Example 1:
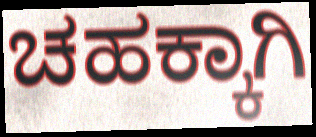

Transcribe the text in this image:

ಚಹಕ್ಕಾಗಿ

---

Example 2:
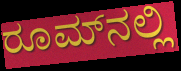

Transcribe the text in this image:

ರೂಮ್‌ನಲ್ಲಿ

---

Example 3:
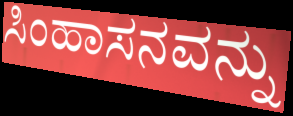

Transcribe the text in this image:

ಸಿಂಹಾಸನವನ್ನು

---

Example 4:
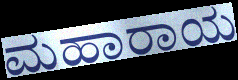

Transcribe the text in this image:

ಮಹಾರಾಯ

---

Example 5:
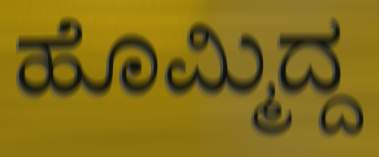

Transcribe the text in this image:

ಹೊಮ್ಮಿದ್ದ